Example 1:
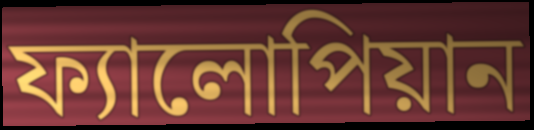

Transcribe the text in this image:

ফ্যালোপিয়ান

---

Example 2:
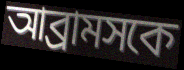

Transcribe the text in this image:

আব্রামসকে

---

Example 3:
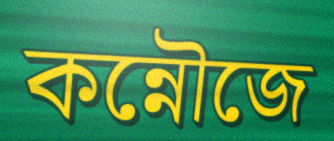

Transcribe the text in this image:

কন্নৌজে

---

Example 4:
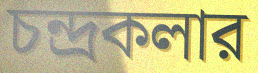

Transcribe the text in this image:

চন্দ্রকলার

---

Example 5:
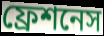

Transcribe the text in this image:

ফ্রেশনেস